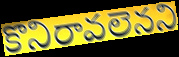
కొనిరావలెనని